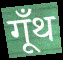
गूँथ